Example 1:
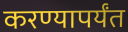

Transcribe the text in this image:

करण्यापर्यंत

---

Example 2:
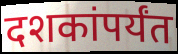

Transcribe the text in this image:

दशकांपर्यंत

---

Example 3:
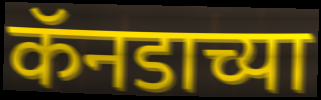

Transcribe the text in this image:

कॅनडाच्या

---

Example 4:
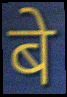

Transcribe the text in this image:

बे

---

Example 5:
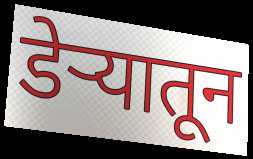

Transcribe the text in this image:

डेऱ्यातून